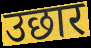
उछार